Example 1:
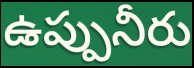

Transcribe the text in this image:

ఉప్పునీరు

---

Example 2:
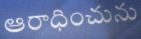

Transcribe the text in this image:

ఆరాధించును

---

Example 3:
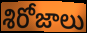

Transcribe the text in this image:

శిరోజాలు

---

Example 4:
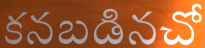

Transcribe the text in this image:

కనబడినచో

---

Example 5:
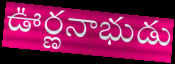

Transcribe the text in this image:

ఊర్ణనాభుడు